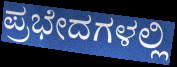
ಪ್ರಭೇದಗಳಲ್ಲಿ